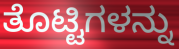
ತೊಟ್ಟಿಗಳನ್ನು